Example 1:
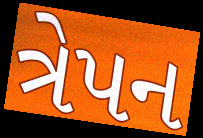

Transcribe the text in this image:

ત્રેપન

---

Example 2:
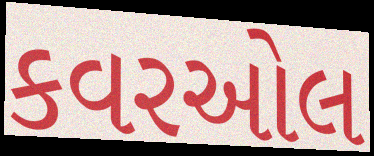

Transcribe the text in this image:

કવરઓલ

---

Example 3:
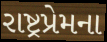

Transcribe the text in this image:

રાષ્ટ્રપ્રેમના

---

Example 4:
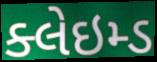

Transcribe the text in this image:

ક્લેઇમ્ડ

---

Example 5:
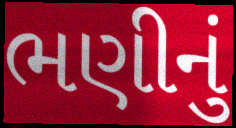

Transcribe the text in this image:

ભણીનું